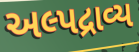
અલ્પદ્રાવ્ય